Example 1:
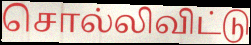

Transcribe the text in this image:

சொல்லிவிட்டு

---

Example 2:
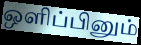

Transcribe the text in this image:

ஒளிப்பினும்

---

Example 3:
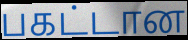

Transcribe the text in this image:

பகட்டான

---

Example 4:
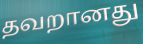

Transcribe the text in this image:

தவறானது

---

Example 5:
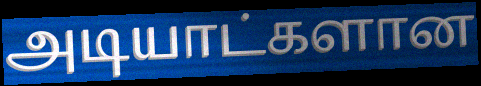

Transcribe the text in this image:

அடியாட்களான